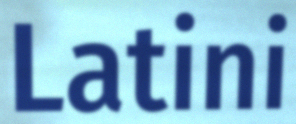
Latini